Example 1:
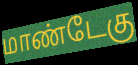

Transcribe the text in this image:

மாண்டேகு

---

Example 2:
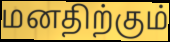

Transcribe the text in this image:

மனதிற்கும்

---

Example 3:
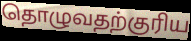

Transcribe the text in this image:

தொழுவதற்குரிய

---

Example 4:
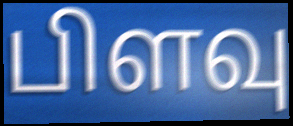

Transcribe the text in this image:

பிளவு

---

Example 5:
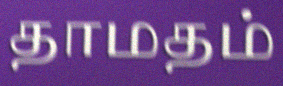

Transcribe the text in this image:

தாமதம்